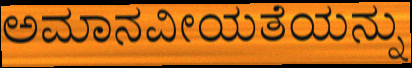
ಅಮಾನವೀಯತೆಯನ್ನು